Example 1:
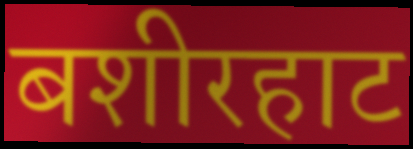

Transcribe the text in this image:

बशीरहाट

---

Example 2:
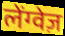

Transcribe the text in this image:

लेंग्वेज़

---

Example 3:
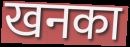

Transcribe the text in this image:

खनका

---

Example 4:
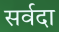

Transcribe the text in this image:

सर्वदा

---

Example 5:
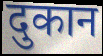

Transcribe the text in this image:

दुकान